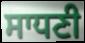
ਸਾਧਣੀ